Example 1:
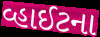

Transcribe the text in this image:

વ્હાઈટના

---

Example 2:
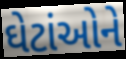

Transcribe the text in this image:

ઘેટાંઓને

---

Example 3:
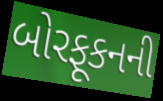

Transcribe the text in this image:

બોરફૂકનની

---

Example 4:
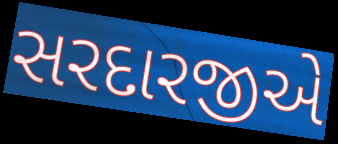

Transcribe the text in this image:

સરદારજીએ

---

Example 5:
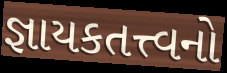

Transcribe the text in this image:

જ્ઞાયકતત્ત્વનો